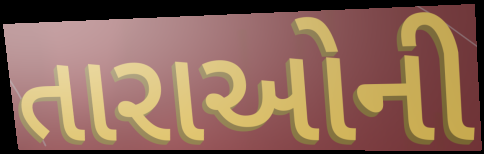
તારાઓની